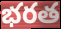
భరత